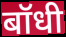
बॉधी